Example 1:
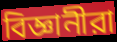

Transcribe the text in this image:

বিজ্ঞানীরা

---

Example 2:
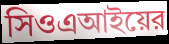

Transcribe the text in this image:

সিওএআইয়ের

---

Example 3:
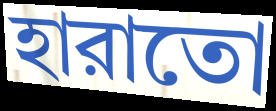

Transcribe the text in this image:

হারাতো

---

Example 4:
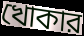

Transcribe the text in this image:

খোকার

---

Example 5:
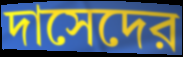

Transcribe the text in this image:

দাসেদের